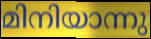
മിനിയാന്നു